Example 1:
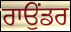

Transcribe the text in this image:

ਰਾਉਂਡਰ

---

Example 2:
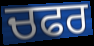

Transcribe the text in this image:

ਚਫਰ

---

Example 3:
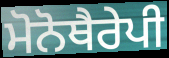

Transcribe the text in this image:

ਮੋਨੋਥੈਰੇਪੀ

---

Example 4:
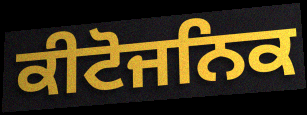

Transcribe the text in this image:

ਕੀਟੋਜਨਿਕ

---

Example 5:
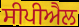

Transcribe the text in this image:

ਸੀਪੀਐਲ